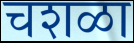
चशळा